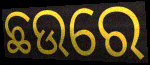
ଛଉରେ